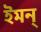
ইমন্